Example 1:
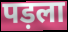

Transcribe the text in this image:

पड़ला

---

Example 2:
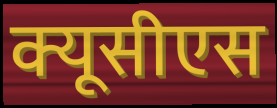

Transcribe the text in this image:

क्यूसीएस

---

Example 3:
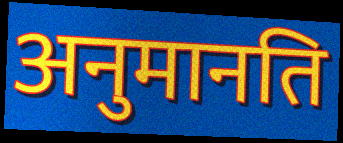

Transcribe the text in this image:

अनुमानति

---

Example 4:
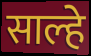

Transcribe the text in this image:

साल्हे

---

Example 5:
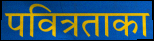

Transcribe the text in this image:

पवित्रताका